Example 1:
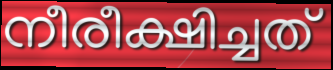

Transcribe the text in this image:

നീരീക്ഷിച്ചത്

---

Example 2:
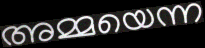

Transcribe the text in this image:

അമ്മയെന്ന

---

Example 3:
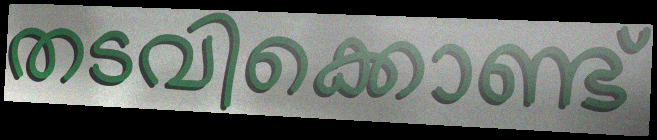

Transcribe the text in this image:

തടവിക്കൊണ്ട്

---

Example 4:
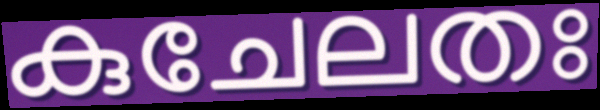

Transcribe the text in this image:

കുചേലതഃ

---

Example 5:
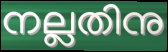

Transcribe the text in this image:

നല്ലതിനു